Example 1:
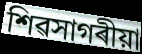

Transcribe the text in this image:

শিৱসাগৰীয়া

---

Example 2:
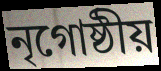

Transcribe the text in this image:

নৃগোষ্ঠীয়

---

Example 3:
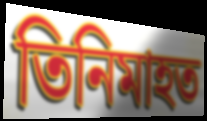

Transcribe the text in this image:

তিনিমাহত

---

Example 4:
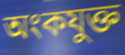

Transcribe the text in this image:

অংকযুক্ত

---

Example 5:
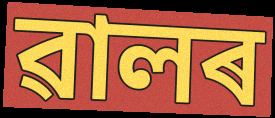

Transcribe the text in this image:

ৱালৰ